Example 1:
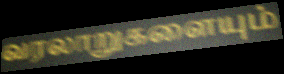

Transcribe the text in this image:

வரலாறுகளையும்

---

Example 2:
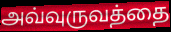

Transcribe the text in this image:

அவ்வுருவத்தை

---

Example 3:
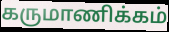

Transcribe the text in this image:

கருமாணிக்கம்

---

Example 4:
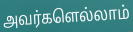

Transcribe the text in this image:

அவர்களெல்லாம்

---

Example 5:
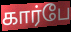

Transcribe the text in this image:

கார்பே